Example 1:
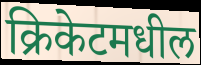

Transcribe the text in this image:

क्रिकेटमधील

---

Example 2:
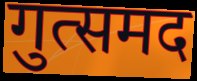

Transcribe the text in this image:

गुत्समद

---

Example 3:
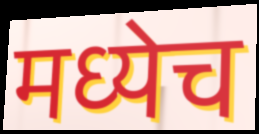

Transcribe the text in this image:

मध्‍येच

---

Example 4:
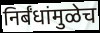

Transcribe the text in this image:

निर्बंधांमुळेच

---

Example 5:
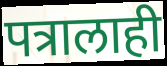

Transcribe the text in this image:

पत्रालाही